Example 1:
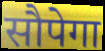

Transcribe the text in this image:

सौपेगा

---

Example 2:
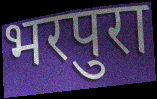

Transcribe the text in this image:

भरपुरा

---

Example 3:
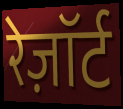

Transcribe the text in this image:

रेज़ॉर्ट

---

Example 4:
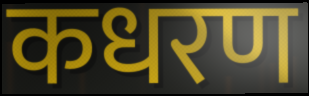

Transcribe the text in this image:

कधरण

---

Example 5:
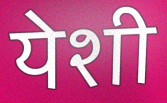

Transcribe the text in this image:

येशी